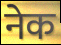
नेक